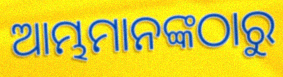
ଆମ୍ଭମାନଙ୍କଠାରୁ